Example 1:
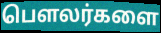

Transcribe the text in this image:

பௌலர்களை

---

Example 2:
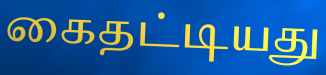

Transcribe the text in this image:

கைதட்டியது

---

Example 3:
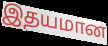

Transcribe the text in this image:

இதயமான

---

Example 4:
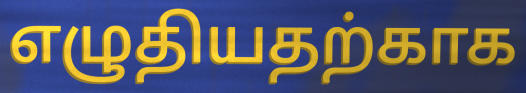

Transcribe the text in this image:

எழுதியதற்காக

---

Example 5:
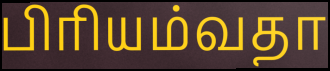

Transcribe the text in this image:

பிரியம்வதா